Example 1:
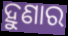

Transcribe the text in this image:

ହୁଣାର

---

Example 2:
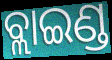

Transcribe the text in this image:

ବ୍ଲାଇଣ୍ଡ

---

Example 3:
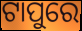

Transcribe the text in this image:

ଟାପୁରେ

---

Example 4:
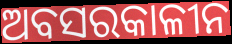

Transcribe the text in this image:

ଅବସରକାଳୀନ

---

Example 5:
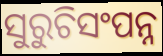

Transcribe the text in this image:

ସୁରୁଚିସଂପନ୍ନ